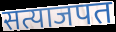
सत्याजपत